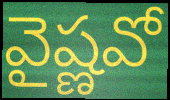
వైష్ణవో